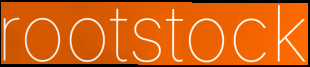
rootstock